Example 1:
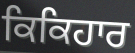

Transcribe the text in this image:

ਕਿਕਿਹਾਰ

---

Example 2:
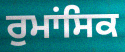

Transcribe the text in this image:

ਰੁਮਾਂਸਿਕ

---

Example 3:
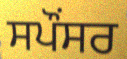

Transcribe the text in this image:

ਸਪੌਂਸਰ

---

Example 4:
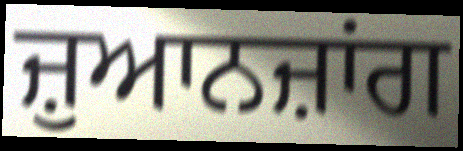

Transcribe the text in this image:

ਜ਼ੁਆਨਜ਼ਾਂਗ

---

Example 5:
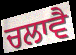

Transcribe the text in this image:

ਚਲਾਵੈ